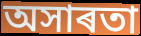
অসাৰতা